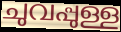
ചുവപ്പുള്ള